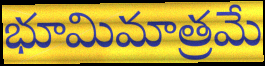
భూమిమాత్రమే